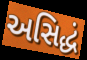
અસિદ્ધં